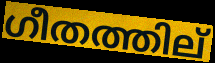
ഗീതത്തില്